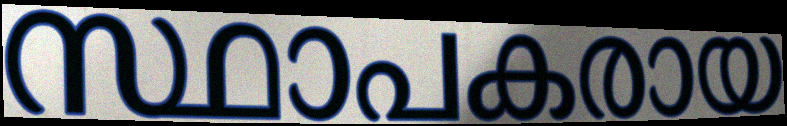
സ്ഥാപകരായ